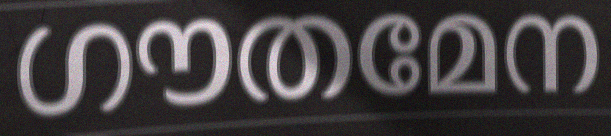
ഗൗതമേന